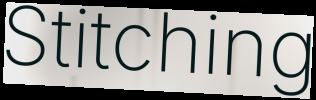
Stitching